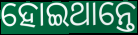
ହୋଇଥାନ୍ତେ